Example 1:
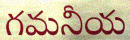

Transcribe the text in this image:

గమనీయ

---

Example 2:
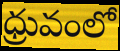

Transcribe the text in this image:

ధ్రువంలో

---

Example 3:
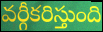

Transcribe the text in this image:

వర్గీకరిస్తుంది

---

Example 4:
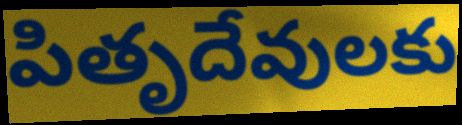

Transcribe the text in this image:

పితృదేవులకు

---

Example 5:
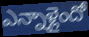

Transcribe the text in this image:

ఎన్నాళ్లైందో